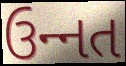
ઉન્‍નત